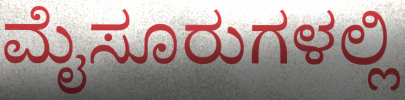
ಮೈಸೂರುಗಳಲ್ಲಿ